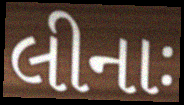
લીનાઃ